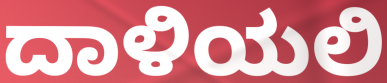
ದಾಳಿಯಲಿ